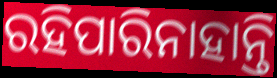
ରହିପାରିନାହାନ୍ତି